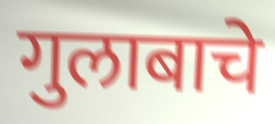
गुलाबाचे